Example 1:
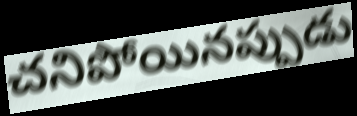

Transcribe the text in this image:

చనిపోయినప్పుడు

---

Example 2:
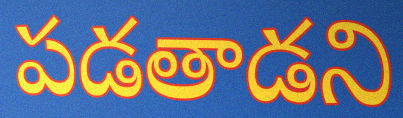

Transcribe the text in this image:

పడతాడని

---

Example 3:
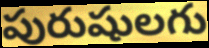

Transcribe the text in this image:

పురుషులగు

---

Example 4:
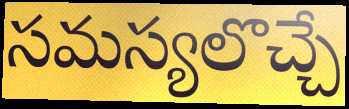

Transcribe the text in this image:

సమస్యలొచ్చే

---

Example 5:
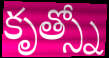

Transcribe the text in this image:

కృత్స్నో